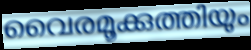
വൈരമൂക്കുത്തിയും